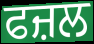
ਫਜ਼ਲ